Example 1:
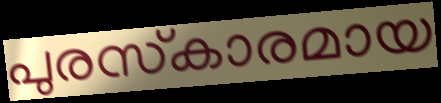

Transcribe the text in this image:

പുരസ്‌കാരമായ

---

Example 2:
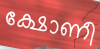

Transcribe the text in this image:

ക്ഷോണീ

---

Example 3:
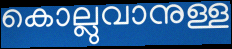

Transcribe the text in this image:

കൊല്ലുവാനുള്ള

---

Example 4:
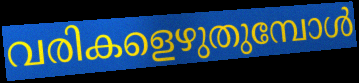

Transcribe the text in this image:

വരികളെഴുതുമ്പോൾ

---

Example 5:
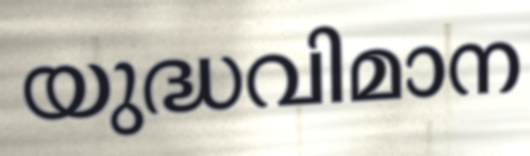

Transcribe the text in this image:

യുദ്ധവിമാന